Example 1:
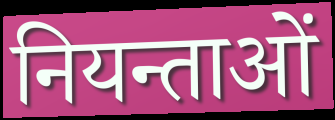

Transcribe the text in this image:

नियन्ताओं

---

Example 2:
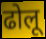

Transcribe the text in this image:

ढोलू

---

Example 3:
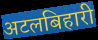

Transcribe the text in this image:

अटलबिहारी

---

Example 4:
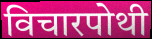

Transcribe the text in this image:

विचारपोथी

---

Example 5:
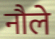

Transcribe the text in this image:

नौले